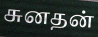
சுனதன்